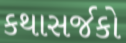
કથાસર્જકો